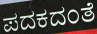
ಪದಕದಂತೆ